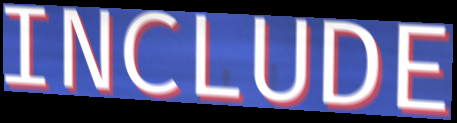
INCLUDE